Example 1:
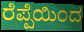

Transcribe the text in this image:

ರೆಪ್ಪೆಯಿಂದ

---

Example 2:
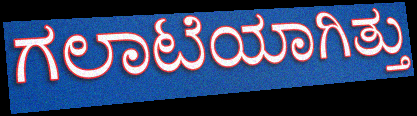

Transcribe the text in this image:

ಗಲಾಟೆಯಾಗಿತ್ತು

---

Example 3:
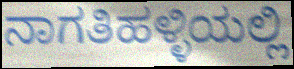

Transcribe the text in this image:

ನಾಗತಿಹಳ್ಳಿಯಲ್ಲಿ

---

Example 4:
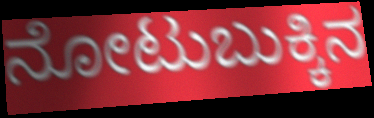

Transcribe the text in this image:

ನೋಟುಬುಕ್ಕಿನ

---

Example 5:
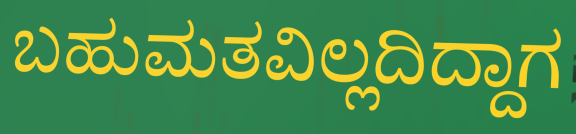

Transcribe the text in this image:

ಬಹುಮತವಿಲ್ಲದಿದ್ದಾಗ